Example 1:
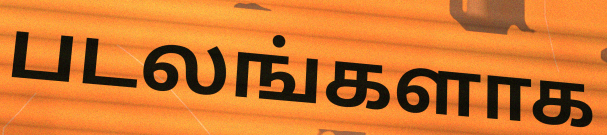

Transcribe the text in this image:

படலங்களாக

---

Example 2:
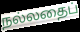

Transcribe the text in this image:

நல்லதைப்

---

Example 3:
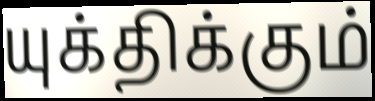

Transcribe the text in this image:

யுக்திக்கும்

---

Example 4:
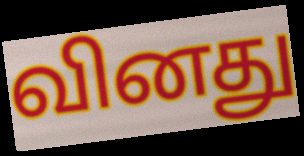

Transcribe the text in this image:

வினது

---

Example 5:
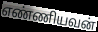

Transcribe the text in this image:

எண்ணியவன்